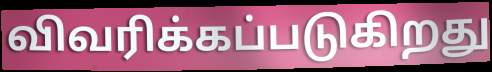
விவரிக்கப்படுகிறது